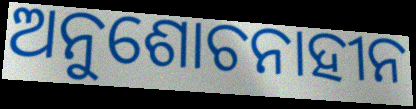
ଅନୁଶୋଚନାହୀନ